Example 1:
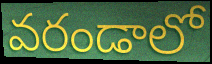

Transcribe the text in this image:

వరండాలో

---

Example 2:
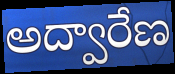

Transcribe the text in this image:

అద్వారేణ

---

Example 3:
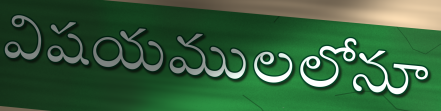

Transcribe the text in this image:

విషయములలోనూ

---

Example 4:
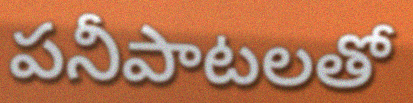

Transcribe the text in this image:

పనీపాటలతో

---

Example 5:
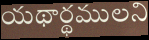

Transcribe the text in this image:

యథార్థములని